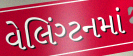
વેલિંગ્ટનમાં